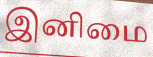
இனிமை